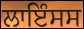
ਲਾਇੰਸਸ